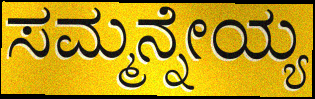
ಸಮ್ಮನ್ನೇಯ್ಯ